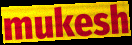
mukesh